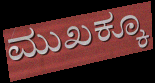
ಮುಖಕ್ಕೂ